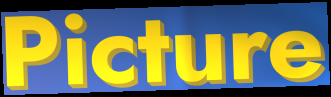
Picture